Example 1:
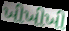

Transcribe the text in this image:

ખીખીખી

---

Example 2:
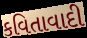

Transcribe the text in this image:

કવિતાવાદી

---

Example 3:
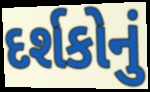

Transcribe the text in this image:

દર્શકોનું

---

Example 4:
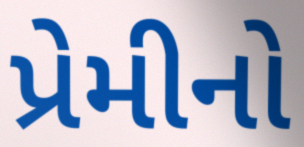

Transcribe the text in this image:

પ્રેમીનો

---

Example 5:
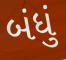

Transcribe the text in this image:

બંધું